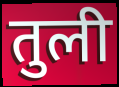
तुली